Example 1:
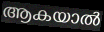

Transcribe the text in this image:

ആകയാൽ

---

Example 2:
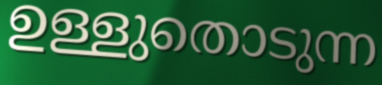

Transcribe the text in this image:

ഉള്ളുതൊടുന്ന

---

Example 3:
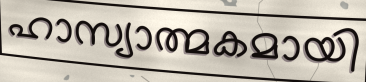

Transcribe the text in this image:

ഹാസ്യാത്മകമായി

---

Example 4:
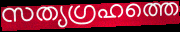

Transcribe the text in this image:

സത്യഗ്രഹത്തെ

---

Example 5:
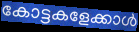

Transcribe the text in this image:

കോട്ടകളേക്കാൾ